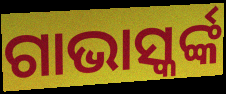
ଗାଭାସ୍କର୍ଙ୍କ